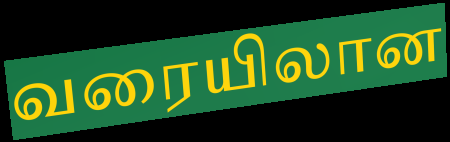
வரையிலான